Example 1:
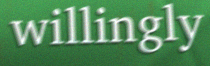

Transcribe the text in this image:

willingly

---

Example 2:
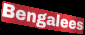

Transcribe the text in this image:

Bengalees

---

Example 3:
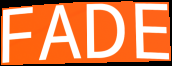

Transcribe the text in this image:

FADE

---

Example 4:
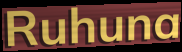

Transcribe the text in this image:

Ruhuna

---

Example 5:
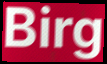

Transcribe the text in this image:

Birg